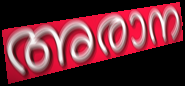
അരാന